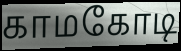
காமகோடி